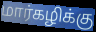
மார்கழிக்கு